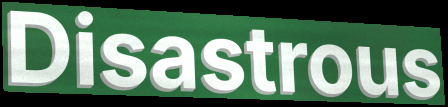
Disastrous